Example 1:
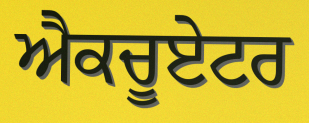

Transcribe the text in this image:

ਐਕਚੂਏਟਰ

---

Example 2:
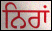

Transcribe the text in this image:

ਨਿਰਾਂ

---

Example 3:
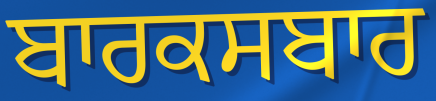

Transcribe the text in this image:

ਬਾਰਕਸਬਾਰ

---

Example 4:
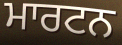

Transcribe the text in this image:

ਮਾਰਟਨ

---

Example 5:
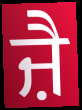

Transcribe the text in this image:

ਜ਼ੈ